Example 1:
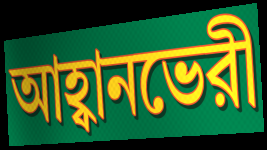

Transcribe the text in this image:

আহ্বানভেরী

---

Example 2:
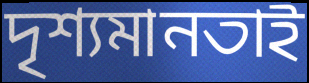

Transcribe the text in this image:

দৃশ্যমানতাই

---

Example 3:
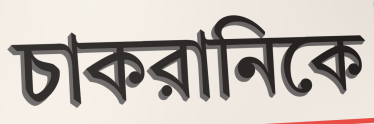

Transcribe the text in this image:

চাকরানিকে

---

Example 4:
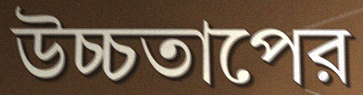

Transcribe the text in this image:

উচ্চতাপের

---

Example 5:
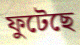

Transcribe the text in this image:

ফুটেছে